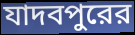
যাদবপুরের